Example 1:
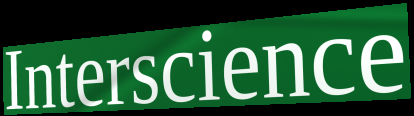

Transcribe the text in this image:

Interscience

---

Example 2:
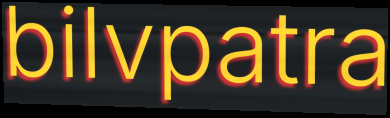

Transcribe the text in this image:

bilvpatra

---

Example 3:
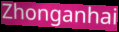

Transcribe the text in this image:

Zhonganhai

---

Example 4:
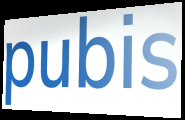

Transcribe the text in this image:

pubis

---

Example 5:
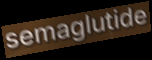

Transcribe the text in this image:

semaglutide